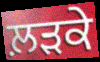
ਲ਼ਡ਼ਕੇ